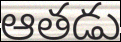
ఆతడు